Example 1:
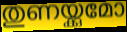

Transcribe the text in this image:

തുണയ്ക്കുമോ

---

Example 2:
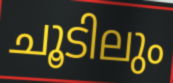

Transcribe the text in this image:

ചൂടിലും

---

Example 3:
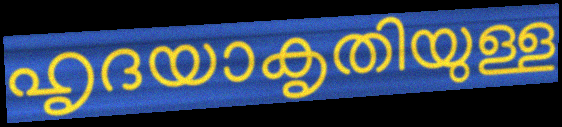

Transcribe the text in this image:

ഹൃദയാകൃതിയുള്ള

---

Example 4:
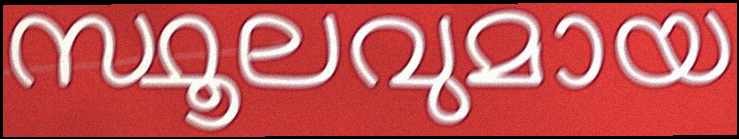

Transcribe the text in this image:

സ്ഥൂലവുമായ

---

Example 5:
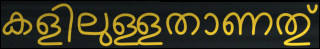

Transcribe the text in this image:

കളിലുള്ളതാണതു്